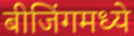
बीजिंगमध्ये